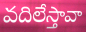
వదిలేస్తావా